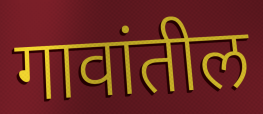
गावांतील